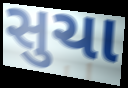
સુચા